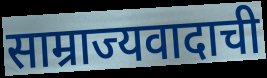
साम्राज्यवादाची